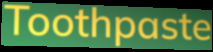
Toothpaste